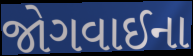
જોગવાઈના